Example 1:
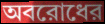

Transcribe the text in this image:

অবরোধের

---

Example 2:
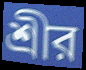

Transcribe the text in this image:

শ্রীর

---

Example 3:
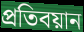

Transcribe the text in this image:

প্রতিবয়ান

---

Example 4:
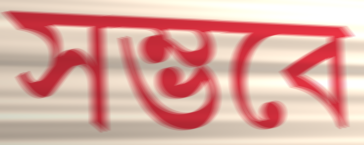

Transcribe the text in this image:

সম্ভবে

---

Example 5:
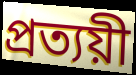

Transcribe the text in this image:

প্রত্যয়ী